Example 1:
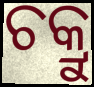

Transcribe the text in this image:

ଚକ୍ରୁ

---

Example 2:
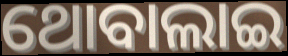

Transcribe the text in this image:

ଥୋବାଲାଇ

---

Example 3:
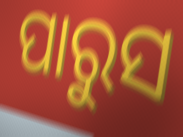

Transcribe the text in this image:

ପାରୁସ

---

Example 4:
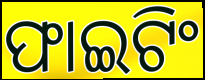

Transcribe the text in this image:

ଫାଇଟିଂ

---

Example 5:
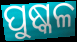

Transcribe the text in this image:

ପୁଷ୍କଳ